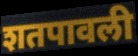
शतपावली